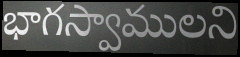
భాగస్వాములని